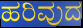
ಹರಿವುದ